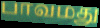
பாவமது